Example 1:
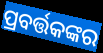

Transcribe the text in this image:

ପ୍ରବର୍ତ୍ତକଙ୍କର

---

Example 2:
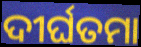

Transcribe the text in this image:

ଦୀର୍ଘତମା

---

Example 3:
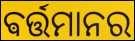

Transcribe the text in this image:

ଵର୍ତ୍ତମାନର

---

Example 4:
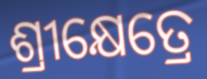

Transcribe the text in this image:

ଶ୍ରୀକ୍ଷେତ୍ରେ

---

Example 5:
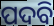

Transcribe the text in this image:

ପଦବି